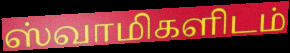
ஸ்வாமிகளிடம்